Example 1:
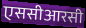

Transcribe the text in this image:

एससीआरसी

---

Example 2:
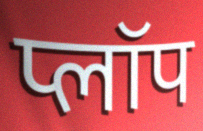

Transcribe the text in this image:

प्लॉप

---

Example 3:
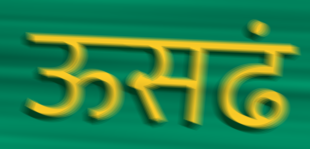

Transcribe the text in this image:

ऊसढं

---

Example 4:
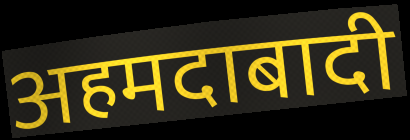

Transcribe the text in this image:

अहमदाबादी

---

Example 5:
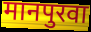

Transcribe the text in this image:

मानपुरवा